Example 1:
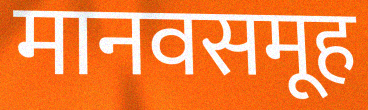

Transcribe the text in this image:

मानवसमूह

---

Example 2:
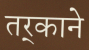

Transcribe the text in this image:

तर्काने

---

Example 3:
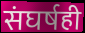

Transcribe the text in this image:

संघर्षही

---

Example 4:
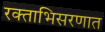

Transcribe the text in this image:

रक्ताभिसरणात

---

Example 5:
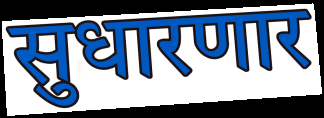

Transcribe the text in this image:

सुधारणार